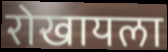
रोखायला